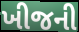
ખીજની